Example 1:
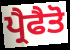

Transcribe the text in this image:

ਪ੍ਰੈਫੈਤੋ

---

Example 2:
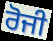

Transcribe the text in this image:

ਰੋਜੀ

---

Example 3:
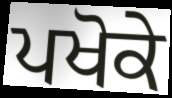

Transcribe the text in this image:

ਪਖੋਕੇ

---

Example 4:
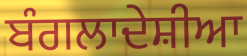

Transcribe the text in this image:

ਬੰਗਲਾਦੇਸ਼ੀਆ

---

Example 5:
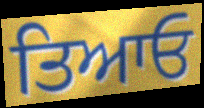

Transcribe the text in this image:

ਤਿਆਓ